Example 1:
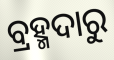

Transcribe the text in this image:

ବ୍ରହ୍ମଦାରୁ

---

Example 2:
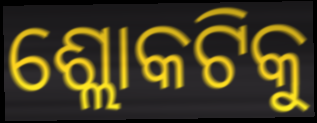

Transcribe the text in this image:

ଶ୍ଲୋକଟିକୁ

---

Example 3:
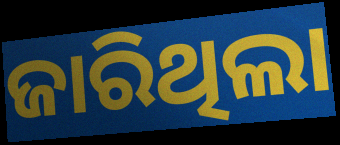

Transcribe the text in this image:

ଜାରିଥିଲା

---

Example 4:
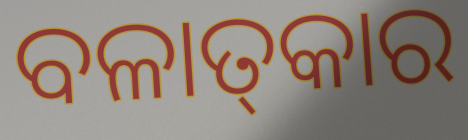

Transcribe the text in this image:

ବଳାତ୍‌କାର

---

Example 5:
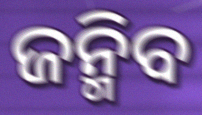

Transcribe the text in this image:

ଜନ୍ମିବ